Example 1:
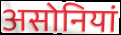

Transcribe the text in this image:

असोनियां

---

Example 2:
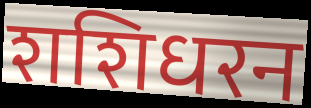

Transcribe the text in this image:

शशिधरन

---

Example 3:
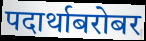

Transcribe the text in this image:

पदार्थाबरोबर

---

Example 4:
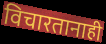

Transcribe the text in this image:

विचारतानाही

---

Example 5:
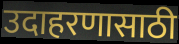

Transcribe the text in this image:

उदाहरणासाठी